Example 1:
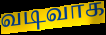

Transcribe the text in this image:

வடிவாக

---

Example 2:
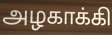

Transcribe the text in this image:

அழகாக்கி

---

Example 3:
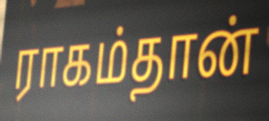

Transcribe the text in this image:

ராகம்தான்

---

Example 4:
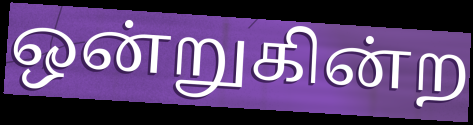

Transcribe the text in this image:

ஒன்றுகின்ற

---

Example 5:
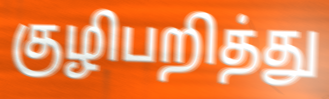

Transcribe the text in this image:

குழிபறித்து